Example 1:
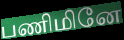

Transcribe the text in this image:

பணிமினே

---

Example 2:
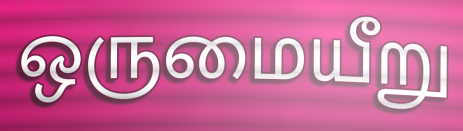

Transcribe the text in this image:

ஒருமையீறு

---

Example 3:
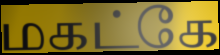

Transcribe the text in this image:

மகட்கே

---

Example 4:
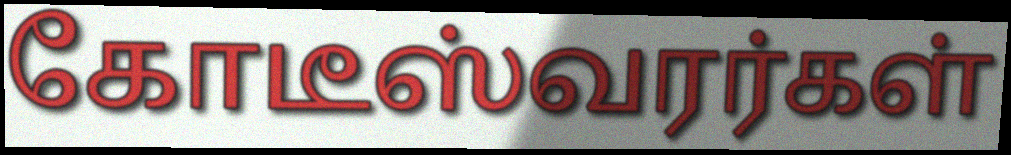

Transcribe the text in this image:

கோடீஸ்வரர்கள்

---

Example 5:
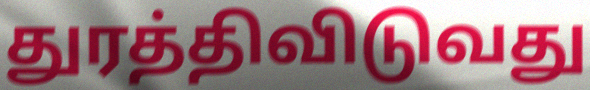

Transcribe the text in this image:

துரத்திவிடுவது